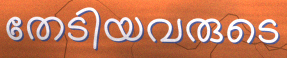
തേടിയവരുടെ